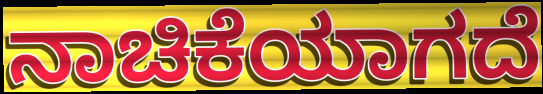
ನಾಚಿಕೆಯಾಗದೆ